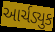
આર્ચડ્યુક